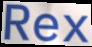
Rex